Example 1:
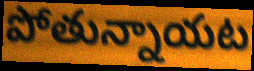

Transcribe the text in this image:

పోతున్నాయట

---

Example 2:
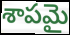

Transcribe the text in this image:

శాపమై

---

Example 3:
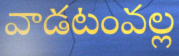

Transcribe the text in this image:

వాడటంవల్ల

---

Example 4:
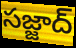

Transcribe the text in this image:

సజ్జాద్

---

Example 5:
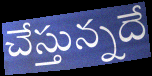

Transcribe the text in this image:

చేస్తున్నదే